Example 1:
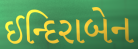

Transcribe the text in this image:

ઈન્દિરાબેન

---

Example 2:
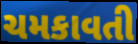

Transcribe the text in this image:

ચમકાવતી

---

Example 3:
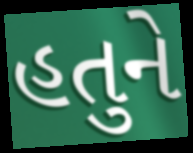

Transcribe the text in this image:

હતુને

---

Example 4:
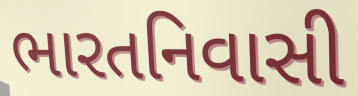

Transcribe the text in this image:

ભારતનિવાસી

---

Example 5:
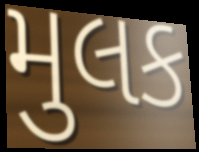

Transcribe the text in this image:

મુલક